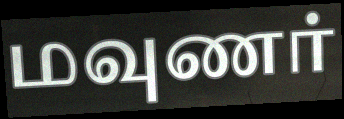
மவுணர்